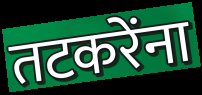
तटकरेंना